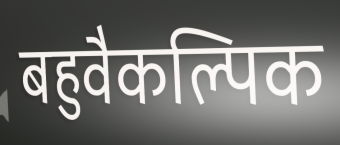
बहुवैकल्पिक